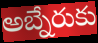
అబ్నేరుకు